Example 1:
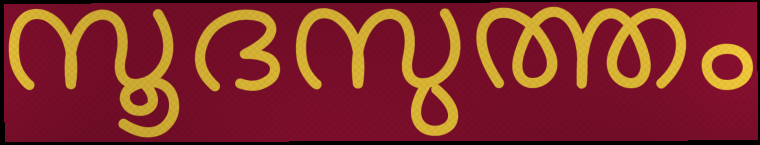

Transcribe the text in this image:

സൂദസുത്തം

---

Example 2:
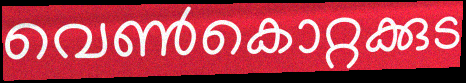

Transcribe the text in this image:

വെൺകൊറ്റക്കുട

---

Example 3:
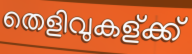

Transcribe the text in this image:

തെളിവുകള്ക്ക്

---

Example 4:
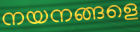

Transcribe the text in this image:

നയനങ്ങളെ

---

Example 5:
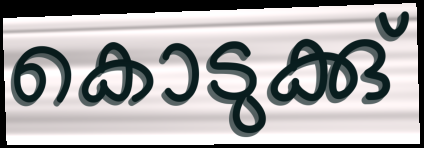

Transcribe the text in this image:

കൊടുക്കു്